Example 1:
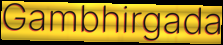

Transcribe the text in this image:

Gambhirgada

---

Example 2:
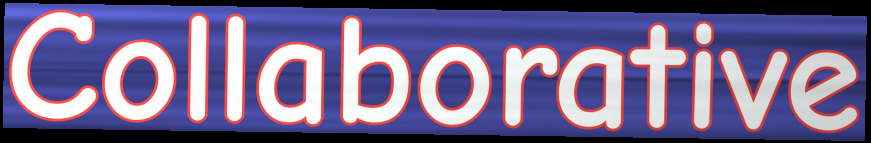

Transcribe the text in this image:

Collaborative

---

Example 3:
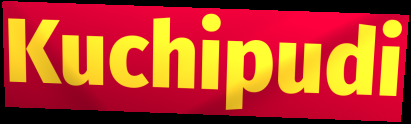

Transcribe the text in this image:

Kuchipudi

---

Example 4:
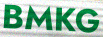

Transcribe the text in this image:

BMKG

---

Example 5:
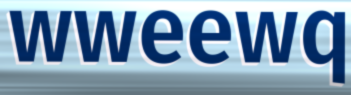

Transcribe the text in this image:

wweewq